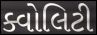
ક્વોલિટી